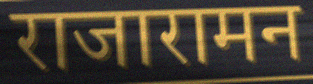
राजारामन